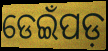
ଡେଇଁପଡ଼